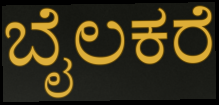
ಬೈಲಕರೆ